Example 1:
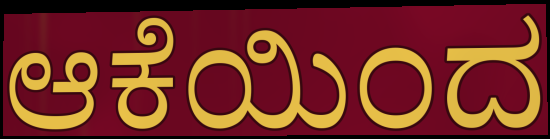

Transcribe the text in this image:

ಆಕೆಯಿಂದ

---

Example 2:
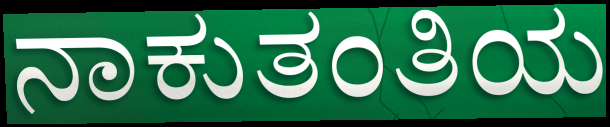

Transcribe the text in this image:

ನಾಕುತಂತಿಯ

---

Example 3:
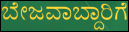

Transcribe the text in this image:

ಬೇಜವಾಬ್ದಾರಿಗೆ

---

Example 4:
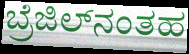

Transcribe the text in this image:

ಬ್ರೆಜಿಲ್‌ನಂತಹ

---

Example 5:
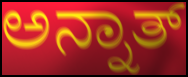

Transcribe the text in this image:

ಅನ್ನಾತ್